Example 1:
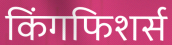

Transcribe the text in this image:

किंगफिशर्स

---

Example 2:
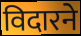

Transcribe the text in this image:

विदारने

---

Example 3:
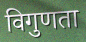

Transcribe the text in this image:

विगुणता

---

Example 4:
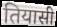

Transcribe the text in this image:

तियासी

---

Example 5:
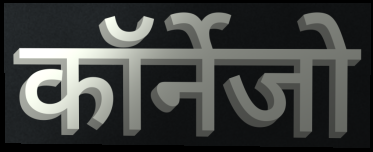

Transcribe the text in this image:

कॉर्नेजो